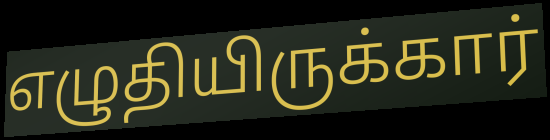
எழுதியிருக்கார்